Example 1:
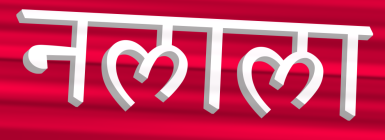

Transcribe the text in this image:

नलाला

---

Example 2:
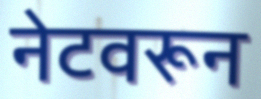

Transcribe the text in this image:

नेटवरून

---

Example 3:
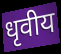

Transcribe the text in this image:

धृवीय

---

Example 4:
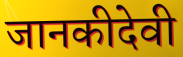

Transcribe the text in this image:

जानकीदेवी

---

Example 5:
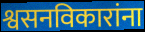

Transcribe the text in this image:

श्वसनविकारांना